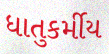
ધાતુકર્મીય